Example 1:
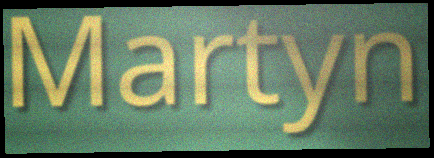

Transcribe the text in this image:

Martyn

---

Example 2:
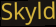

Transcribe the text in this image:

Skyld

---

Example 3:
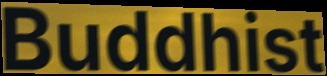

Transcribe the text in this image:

Buddhist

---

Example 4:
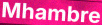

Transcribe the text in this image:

Mhambre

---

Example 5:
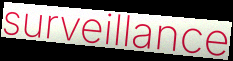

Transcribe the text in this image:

surveillance